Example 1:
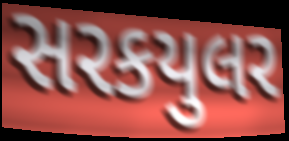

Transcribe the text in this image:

સરકયુલર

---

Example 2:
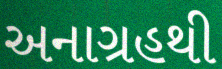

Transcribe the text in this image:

અનાગ્રહથી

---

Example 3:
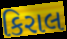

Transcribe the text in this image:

કિરાલ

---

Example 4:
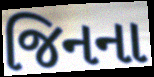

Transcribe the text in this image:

જિનના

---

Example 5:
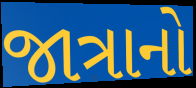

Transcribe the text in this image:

જાત્રાનો